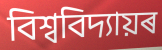
বিশ্ববিদ্যায়ৰ